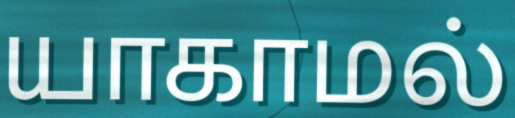
யாகாமல்